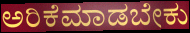
ಅರಿಕೆಮಾಡಬೇಕು